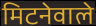
मिटनेवाले